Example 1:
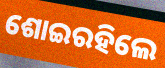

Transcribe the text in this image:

ଶୋଇରହିଲେ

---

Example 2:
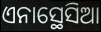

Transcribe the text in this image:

ଏନାସ୍ଥେସିଆ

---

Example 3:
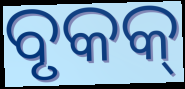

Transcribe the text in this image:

ବୃକକ୍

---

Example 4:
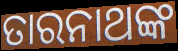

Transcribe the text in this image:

ତାରନାଥଙ୍କ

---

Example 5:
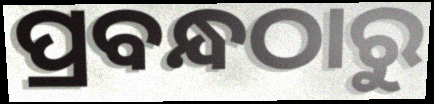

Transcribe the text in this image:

ପ୍ରବନ୍ଧଠାରୁ